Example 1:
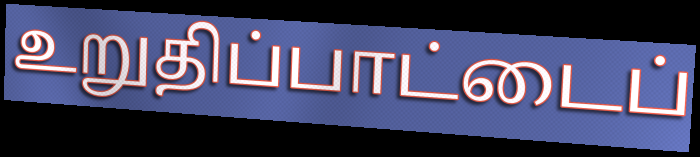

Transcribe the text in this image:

உறுதிப்பாட்டைப்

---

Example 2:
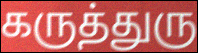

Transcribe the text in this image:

கருத்துரு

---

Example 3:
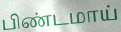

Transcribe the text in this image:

பிண்டமாய்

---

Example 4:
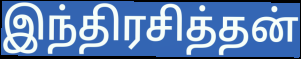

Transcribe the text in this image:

இந்திரசித்தன்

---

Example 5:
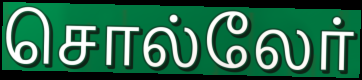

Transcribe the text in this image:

சொல்லேர்